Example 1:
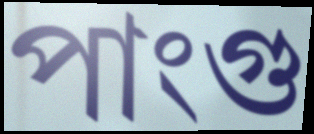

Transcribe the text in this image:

পাংগু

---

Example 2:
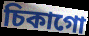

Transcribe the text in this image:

চিকাগো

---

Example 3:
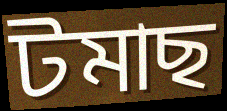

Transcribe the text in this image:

টমাছ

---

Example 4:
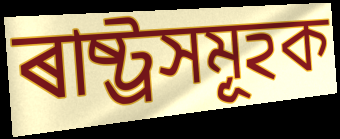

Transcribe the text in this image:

ৰাষ্ট্ৰসমূহক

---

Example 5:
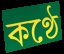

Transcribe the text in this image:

কণ্ঠে